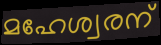
മഹേശ്വരന്